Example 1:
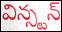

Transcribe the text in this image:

విన్స్టన్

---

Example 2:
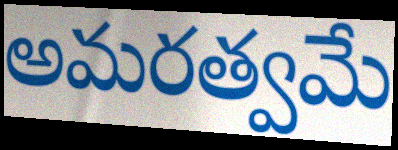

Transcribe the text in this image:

అమరత్వమే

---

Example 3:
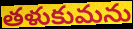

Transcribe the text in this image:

తళుకుమను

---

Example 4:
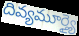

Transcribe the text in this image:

దివ్యమూర్త్యై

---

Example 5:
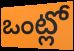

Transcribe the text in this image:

ఒంట్లో